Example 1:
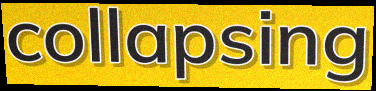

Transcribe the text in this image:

collapsing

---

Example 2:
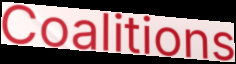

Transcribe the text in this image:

Coalitions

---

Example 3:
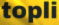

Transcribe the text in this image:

topli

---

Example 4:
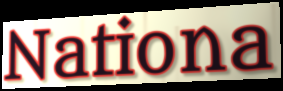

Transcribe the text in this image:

Nationa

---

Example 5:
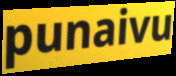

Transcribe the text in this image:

punaivu